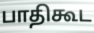
பாதிகூட